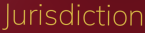
Jurisdiction